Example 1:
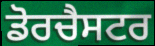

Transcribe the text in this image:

ਡੋਰਚੈਸਟਰ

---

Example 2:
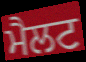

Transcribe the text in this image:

ਮੈਲਟ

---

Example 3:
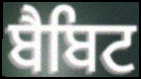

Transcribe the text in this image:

ਬੈਬਿਟ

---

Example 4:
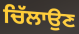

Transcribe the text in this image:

ਚਿੱਲਾਉਣ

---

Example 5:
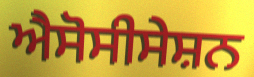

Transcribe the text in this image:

ਐਸੋਸੀਸੇਸ਼ਨ